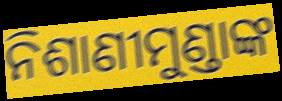
ନିଶାଣୀମୁଣ୍ଡାଙ୍କ